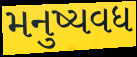
મનુષ્યવધ